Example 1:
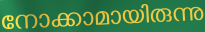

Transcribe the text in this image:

നോക്കാമായിരുന്നു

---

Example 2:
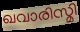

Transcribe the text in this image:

ഖവാരിസ്മി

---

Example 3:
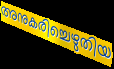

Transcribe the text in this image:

അനുകരിച്ചെഴുതിയ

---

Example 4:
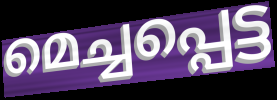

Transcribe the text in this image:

മെച്ചപ്പെട്ട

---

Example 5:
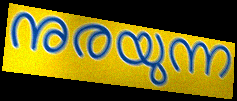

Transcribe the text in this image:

നുരയുന്ന